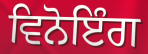
ਵਿਨੋਇੰਗ